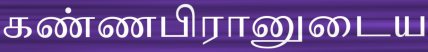
கண்ணபிரானுடைய